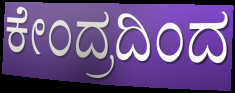
ಕೇಂದ್ರದಿಂದ